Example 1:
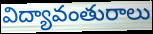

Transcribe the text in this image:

విద్యావంతురాలు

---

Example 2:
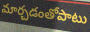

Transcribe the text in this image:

మార్చడంతోపాటు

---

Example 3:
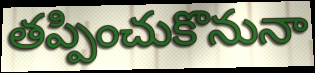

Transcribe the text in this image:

తప్పించుకొనునా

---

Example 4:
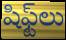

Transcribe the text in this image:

షిఫ్ట్‌లు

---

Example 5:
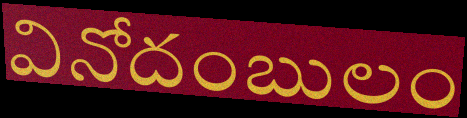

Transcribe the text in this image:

వినోదంబులం